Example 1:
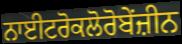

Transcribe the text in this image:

ਨਾਈਟਰੋਕਲੋਰੋਬੇਂਜ਼ੀਨ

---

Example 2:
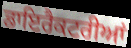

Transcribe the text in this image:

ਡਾਇਰੈਕਟਰੀਆਂ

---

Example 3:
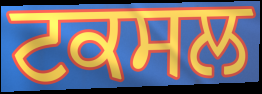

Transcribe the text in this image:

ਟਕਸਲ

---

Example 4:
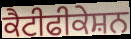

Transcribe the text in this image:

ਕੈਟੀਫੀਕੇਸ਼ਨ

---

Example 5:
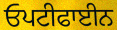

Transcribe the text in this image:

ਓਪਟੀਫਾਈਨ